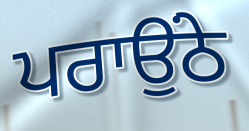
ਪਰਾਉਂਠੇ